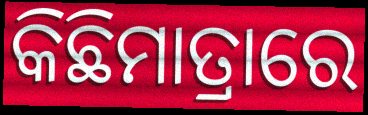
କିଛିମାତ୍ରାରେ